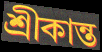
শ্রীকান্ত